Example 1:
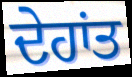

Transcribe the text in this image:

ਦੇਹਾਂਤ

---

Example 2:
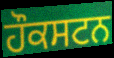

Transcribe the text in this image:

ਹੌਕਸਟਨ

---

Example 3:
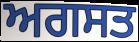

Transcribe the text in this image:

ਅਗਸਤ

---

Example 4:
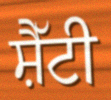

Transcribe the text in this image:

ਸ਼ੈੱਟੀ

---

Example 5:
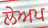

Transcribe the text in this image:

ਲੇਅਪ